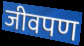
जीवपण